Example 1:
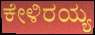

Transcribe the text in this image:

ಕೇಳಿರಯ್ಯ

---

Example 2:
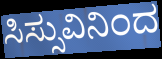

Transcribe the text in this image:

ಸಿಸ್ಸುವಿನಿಂದ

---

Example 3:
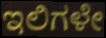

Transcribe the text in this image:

ಇಲಿಗಳೇ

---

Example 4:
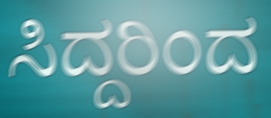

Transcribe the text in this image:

ಸಿದ್ದರಿಂದ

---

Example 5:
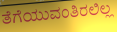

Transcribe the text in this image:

ತೆಗೆಯುವಂತಿರಲಿಲ್ಲ